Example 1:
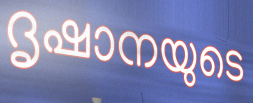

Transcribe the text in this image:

ദൃഷാനയുടെ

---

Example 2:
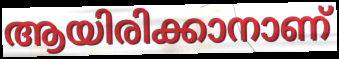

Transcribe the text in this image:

ആയിരിക്കാനാണ്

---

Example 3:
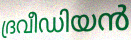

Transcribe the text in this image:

ദ്രവീഡിയൻ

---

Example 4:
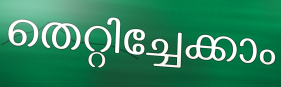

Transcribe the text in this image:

തെറ്റിച്ചേക്കാം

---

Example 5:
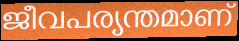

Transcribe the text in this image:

ജീവപര്യന്തമാണ്